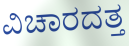
ವಿಚಾರದತ್ತ